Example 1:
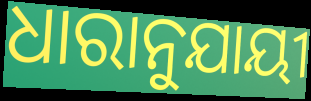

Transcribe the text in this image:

ଧାରାନୁଯାୟୀ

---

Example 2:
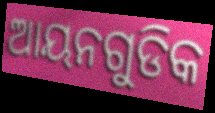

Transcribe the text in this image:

ଆୟନଗୁଡିକ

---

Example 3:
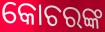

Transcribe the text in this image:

କୋଚରଙ୍କ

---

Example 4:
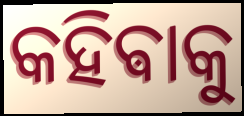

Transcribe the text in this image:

କହିଵାକୁ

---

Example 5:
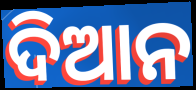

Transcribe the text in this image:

ଦିଆନ